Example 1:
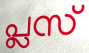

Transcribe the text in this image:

പ്ലസ്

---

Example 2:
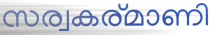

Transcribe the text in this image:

സര്വകര്മാണി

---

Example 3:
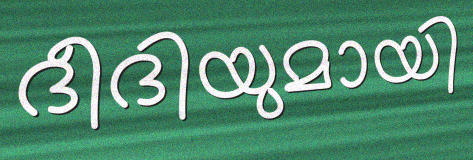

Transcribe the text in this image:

ദീദിയുമായി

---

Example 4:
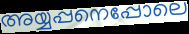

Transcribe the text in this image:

അയ്യപ്പനെപ്പോലെ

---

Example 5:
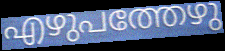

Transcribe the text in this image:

എഴുപത്തേഴു